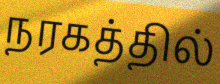
நரகத்தில்